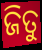
ଜିତୁ